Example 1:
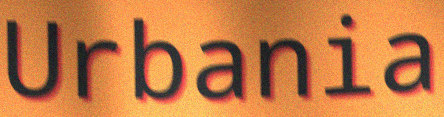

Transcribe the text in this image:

Urbania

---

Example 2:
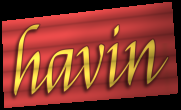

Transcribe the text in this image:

havin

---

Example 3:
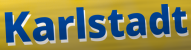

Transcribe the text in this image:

Karlstadt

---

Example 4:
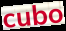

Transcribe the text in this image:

cubo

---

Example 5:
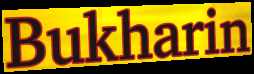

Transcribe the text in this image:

Bukharin